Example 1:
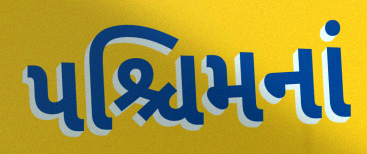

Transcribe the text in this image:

પશ્ચિમનાં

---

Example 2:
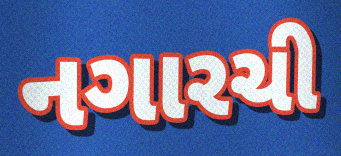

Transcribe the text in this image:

નગારચી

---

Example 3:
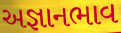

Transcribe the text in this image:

અજ્ઞાનભાવ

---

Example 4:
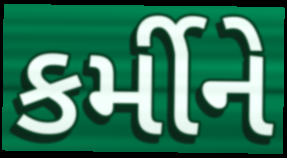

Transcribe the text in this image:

કર્મીને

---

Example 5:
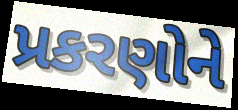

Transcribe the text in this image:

પ્રકરણોને